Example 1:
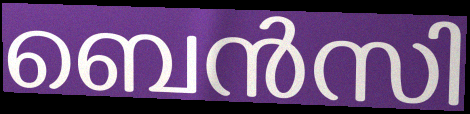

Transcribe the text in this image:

ബെൻസി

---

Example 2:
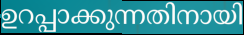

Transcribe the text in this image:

ഉറപ്പാക്കുന്നതിനായി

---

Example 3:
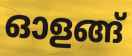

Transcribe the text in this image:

ഓളങ്ങ്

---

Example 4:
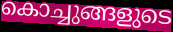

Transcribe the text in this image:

കൊച്ചുങ്ങളുടെ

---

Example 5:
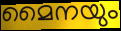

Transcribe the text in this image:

മൈനയും